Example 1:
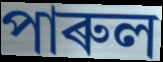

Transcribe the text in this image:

পাৰুল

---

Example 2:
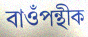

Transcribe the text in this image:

বাওঁপন্থীক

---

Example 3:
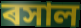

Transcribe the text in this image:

ৰসাল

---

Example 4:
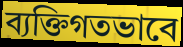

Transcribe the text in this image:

ব্যক্তিগতভাবে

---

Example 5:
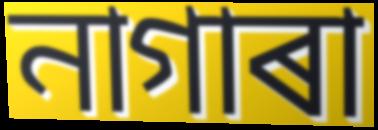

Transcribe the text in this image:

নাগাৰা